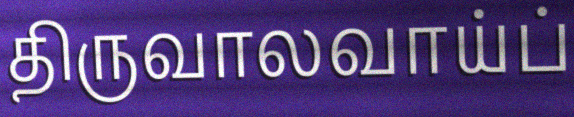
திருவாலவாய்ப்